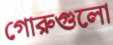
গোরুগুলো